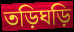
তড়িঘড়ি